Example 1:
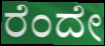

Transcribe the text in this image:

ರೆಂದೇ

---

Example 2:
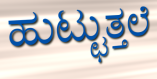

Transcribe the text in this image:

ಹುಟ್ಟುತ್ತಲೆ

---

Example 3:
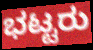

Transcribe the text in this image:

ಭಟ್ಟರು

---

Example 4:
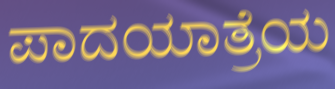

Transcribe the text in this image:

ಪಾದಯಾತ್ರೆಯ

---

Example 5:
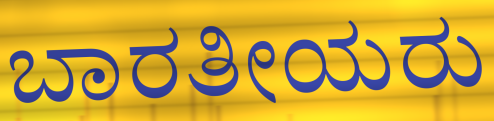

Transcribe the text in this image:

ಬಾರತೀಯರು